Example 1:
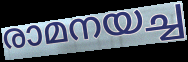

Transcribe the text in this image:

രാമനയച്ച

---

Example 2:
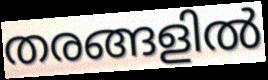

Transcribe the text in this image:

തരങ്ങളിൽ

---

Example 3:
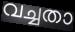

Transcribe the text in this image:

വച്ചതാ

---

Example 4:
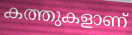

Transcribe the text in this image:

കത്തുകളാണ്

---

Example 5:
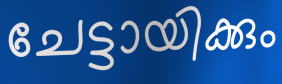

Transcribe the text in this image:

ചേട്ടായിക്കും